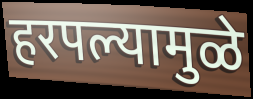
हरपल्यामुळे